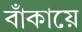
বাঁকায়ে